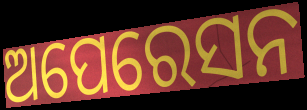
ଅପେରେସନ